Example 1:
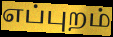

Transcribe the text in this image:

எப்புறம்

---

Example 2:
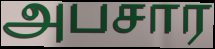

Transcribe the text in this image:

அபசார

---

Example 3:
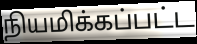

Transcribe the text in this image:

நியமிக்கப்பட்ட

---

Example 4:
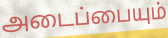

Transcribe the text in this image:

அடைப்பையும்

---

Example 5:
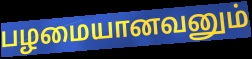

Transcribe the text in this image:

பழமையானவனும்